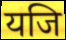
यजि